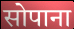
सोपाना